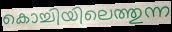
കൊച്ചിയിലെത്തുന്ന